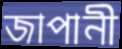
জাপানী